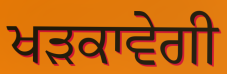
ਖੜਕਾਵੇਗੀ